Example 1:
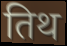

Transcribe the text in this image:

तिथ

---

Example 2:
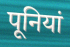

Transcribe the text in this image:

पूनियां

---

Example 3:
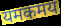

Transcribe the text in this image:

यमकमय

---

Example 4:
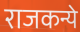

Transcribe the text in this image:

राजकन्ये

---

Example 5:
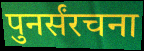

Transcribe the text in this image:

पुनर्संरचना